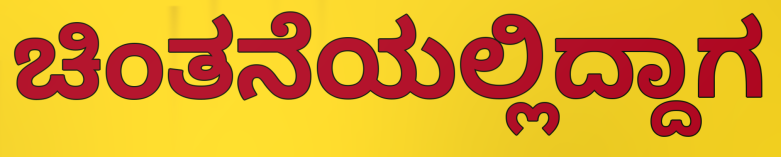
ಚಿಂತನೆಯಲ್ಲಿದ್ದಾಗ